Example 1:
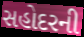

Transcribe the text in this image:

સહોદરની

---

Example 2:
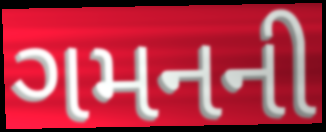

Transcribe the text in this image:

ગમનની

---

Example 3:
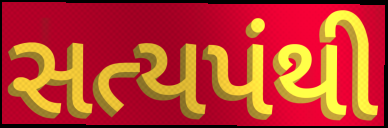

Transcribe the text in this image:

સત્યપંથી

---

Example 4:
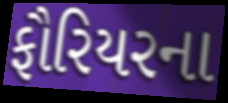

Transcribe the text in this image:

ફૌરિયરના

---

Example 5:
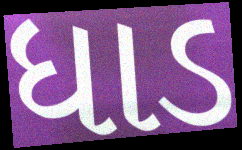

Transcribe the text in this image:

ધાડ